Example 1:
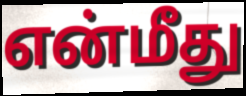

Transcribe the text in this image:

என்மீது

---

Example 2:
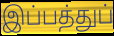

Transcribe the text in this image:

இப்பத்துப்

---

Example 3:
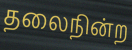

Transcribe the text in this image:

தலைநின்ற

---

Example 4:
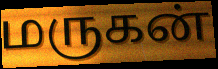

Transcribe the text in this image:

மருகன்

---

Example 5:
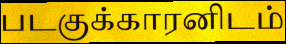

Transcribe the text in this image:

படகுக்காரனிடம்